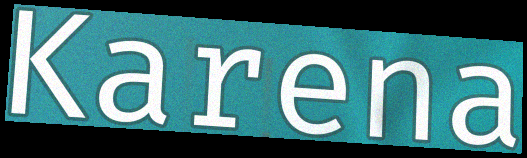
Karena